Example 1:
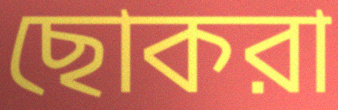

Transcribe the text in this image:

ছোকরা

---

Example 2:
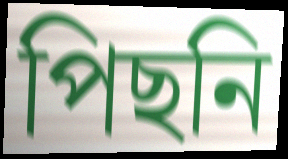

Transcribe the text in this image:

পিছনি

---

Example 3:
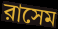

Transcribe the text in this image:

রাসেম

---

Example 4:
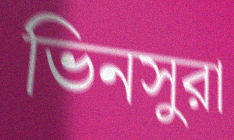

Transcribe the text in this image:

ভিনসুরা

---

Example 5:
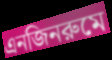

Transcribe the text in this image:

এনজিনরুমে